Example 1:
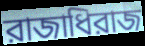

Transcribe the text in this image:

রাজাধিরাজ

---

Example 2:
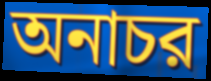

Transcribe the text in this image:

অনাচর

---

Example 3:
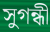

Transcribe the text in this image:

সুগন্ধী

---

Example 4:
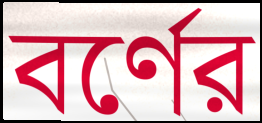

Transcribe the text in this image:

বর্ণের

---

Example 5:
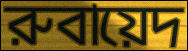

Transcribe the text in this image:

রুবায়েদ